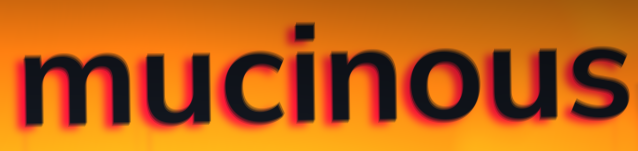
mucinous